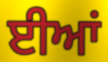
ਈਆਂ